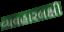
વ્યવહારલક્ષી